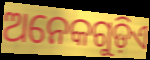
ଅନେକଗୁଡ଼ିଏ